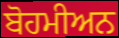
ਬੋਹਮੀਅਨ